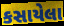
કસાયેલા